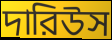
দারিউস